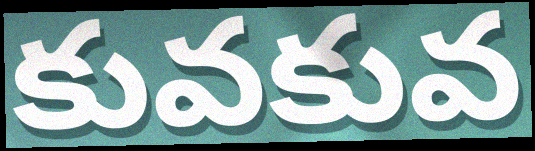
కువకువ